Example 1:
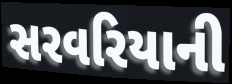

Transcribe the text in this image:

સરવરિયાની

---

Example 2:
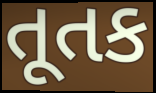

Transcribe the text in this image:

તૂતક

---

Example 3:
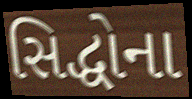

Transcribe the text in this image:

સિદ્ધોના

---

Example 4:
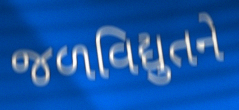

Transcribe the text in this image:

જળવિદ્યુતને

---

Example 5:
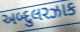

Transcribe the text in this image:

અબ્દુલરઝાક